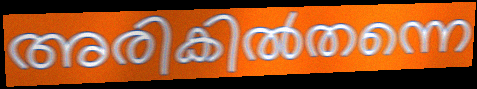
അരികിൽതന്നെ